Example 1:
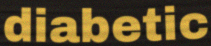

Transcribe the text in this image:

diabetic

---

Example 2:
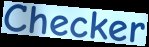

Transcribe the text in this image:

Checker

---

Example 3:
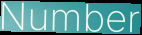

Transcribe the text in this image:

Number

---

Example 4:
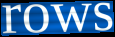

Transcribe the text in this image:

rows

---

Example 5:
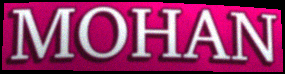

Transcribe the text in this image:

MOHAN